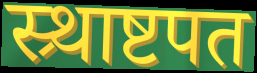
स्र्थाष्टपत